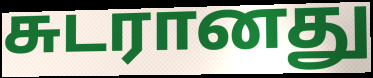
சுடரானது